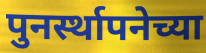
पुनर्स्थापनेच्या